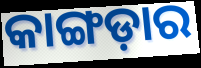
କାଙ୍ଗଡ଼ାର